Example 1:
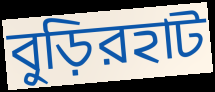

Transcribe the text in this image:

বুড়িরহাট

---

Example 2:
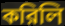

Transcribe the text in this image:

করিলি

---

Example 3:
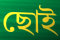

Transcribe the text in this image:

ছোই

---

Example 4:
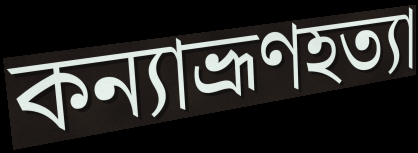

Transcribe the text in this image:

কন্যাভ্রূণহত্যা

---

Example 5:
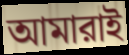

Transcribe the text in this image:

আমারাই